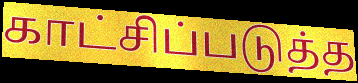
காட்சிப்படுத்த